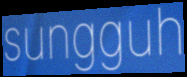
sungguh